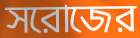
সরোজের